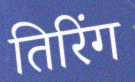
तिरिंग